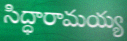
సిద్ధారామయ్య